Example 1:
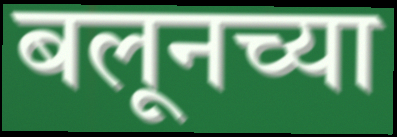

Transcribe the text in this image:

बलूनच्या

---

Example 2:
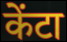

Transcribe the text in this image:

केंटा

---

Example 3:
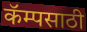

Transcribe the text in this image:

कॅम्पसाठी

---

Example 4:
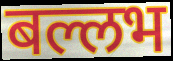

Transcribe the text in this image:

बल्लभ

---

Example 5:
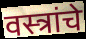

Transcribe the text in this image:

वस्त्रांचे